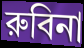
রুবিনা